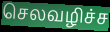
செலவழிச்ச